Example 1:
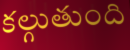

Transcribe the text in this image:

కల్గుతుంది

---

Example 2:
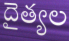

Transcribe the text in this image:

దైత్యల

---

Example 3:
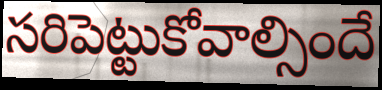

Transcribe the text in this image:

సరిపెట్టుకోవాల్సిందే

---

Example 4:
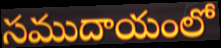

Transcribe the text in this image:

సముదాయంలో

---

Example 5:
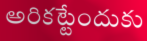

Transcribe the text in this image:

అరికట్టేందుకు